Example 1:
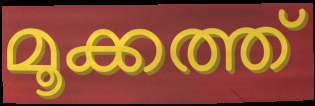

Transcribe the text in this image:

മൂക്കത്ത്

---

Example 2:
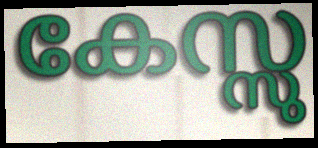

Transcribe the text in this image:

കേസ്സു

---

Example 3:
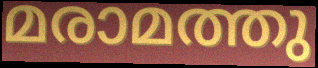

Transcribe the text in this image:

മരാമത്തു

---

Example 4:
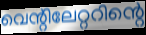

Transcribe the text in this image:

വെന്റിലേറ്ററിന്റെ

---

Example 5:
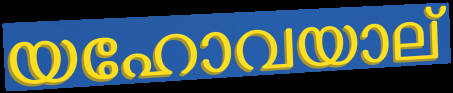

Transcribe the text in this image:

യഹോവയാല്